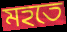
মহতে